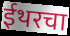
ईथरचा